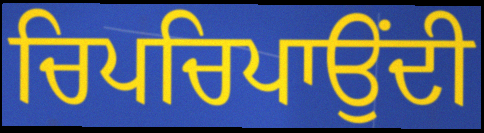
ਚਿਪਚਿਪਾਉਂਦੀ